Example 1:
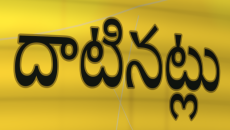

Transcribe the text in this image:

దాటినట్లు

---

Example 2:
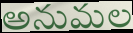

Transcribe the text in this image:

అనుమల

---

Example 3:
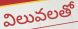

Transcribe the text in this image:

విలువలతో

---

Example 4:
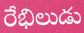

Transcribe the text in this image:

రేభిలుడు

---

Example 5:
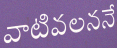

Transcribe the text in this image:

వాటివలననే